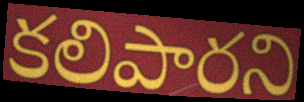
కలిపారని